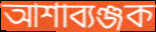
আশাব্যঞ্জক